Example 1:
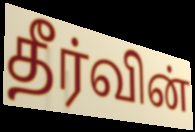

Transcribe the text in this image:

தீர்வின்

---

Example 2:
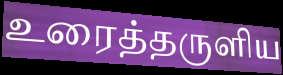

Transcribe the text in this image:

உரைத்தருளிய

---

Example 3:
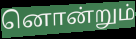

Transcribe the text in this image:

னொன்றும்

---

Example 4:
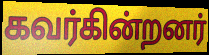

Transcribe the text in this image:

கவர்கின்றனர்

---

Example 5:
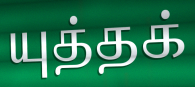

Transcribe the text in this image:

யுத்தக்